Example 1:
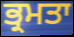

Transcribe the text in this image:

ਭ੍ਰਮਤਾ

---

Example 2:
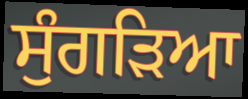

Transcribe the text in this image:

ਸੁੰਗੜਿਆ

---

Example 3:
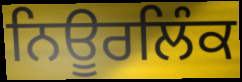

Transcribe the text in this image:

ਨਿਊਰਲਿੰਕ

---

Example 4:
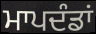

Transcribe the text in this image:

ਮਾਪਦੰਡਾਂ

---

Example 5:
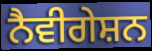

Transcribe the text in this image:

ਨੈਵੀਗੇਸ਼ਨ